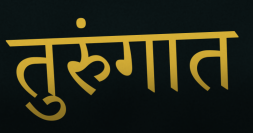
तुरुंगात